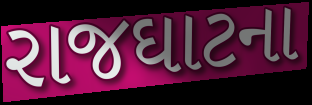
રાજઘાટના